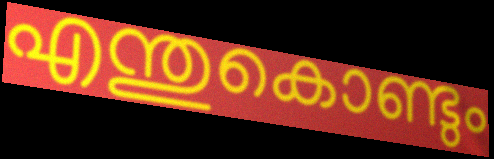
എന്തുകൊണ്ടും